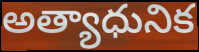
అత్యాధునిక